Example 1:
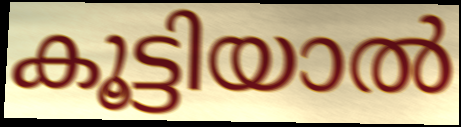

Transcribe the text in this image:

കൂട്ടിയാൽ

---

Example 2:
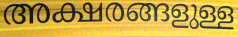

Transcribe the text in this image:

അക്ഷരങ്ങളുള്ള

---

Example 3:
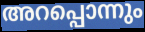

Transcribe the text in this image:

അറപ്പൊന്നും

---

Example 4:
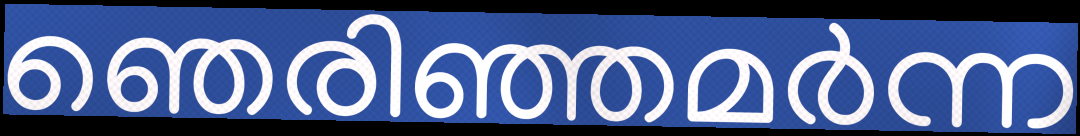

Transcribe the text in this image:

ഞെരിഞ്ഞമർന്ന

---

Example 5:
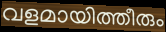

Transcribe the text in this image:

വളമായിത്തീരും